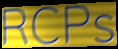
RCPs